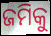
ଜମିକୁ